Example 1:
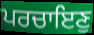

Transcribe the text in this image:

ਪਰਚਾਇਣੁ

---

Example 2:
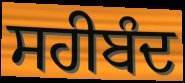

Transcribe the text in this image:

ਸਹੀਬੰਦ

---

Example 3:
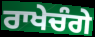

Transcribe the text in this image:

ਰਾਖੇਚੰਗੇ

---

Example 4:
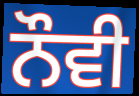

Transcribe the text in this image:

ਨੌਵੀ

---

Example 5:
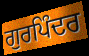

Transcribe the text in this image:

ਗੁਰਪਿੰਦਰ